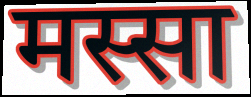
मस्‍सा